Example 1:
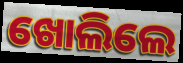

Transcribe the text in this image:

ଖୋଲିଲେ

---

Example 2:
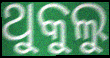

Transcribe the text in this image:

ଥୁକୁଲୁ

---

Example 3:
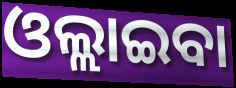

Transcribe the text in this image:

ଓଲ୍ଲାଇବା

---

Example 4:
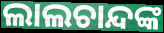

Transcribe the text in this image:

ଲାଲଚାନ୍ଦଙ୍କ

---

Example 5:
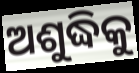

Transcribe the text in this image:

ଅଶୁଦ୍ଧିକୁ